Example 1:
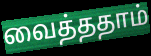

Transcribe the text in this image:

வைத்ததாம்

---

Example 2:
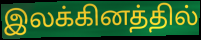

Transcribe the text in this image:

இலக்கினத்தில்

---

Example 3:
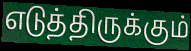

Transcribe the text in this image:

எடுத்திருக்கும்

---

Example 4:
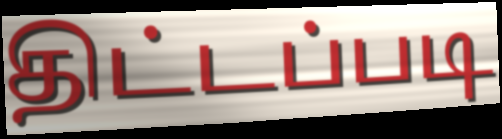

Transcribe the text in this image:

திட்டப்படி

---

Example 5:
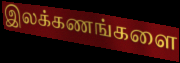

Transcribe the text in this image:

இலக்கணங்களை